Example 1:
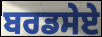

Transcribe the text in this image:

ਬਰਡਸੇਏ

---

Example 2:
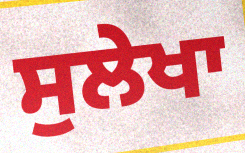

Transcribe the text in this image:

ਸੁਲੇਖਾ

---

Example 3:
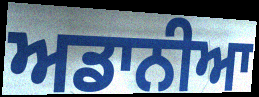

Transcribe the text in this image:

ਅਡਾਨੀਆ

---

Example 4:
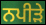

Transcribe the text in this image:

ਨਪੀੜੇ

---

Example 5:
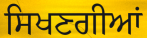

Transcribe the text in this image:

ਸਿਖਣਗੀਆਂ